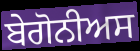
ਬੇਗੋਨੀਅਸ